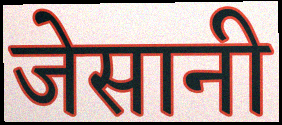
जेसानी